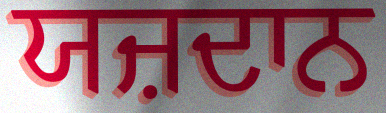
ਯਜ਼ਦਾਨ